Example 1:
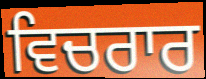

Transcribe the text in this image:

ਵਿਚਰਾਰ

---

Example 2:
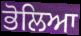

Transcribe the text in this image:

ਭੋਲਿਆ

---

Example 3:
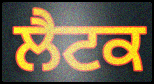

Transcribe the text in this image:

ਲੈਟਕ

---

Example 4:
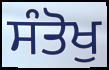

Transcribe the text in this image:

ਸੰਤੋਖੁ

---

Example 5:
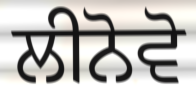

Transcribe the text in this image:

ਲੀਨੋਵੋ